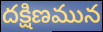
దక్షిణమున